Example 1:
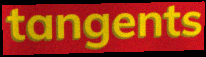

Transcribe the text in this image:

tangents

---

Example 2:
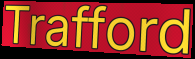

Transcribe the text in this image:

Trafford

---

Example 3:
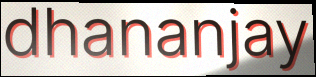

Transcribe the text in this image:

dhananjay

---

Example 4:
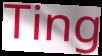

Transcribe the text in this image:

Ting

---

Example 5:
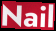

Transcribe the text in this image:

Nail